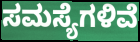
ಸಮಸ್ಯೆಗಳಿವೆ